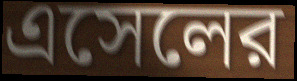
এসেলের